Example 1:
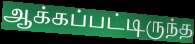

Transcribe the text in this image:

ஆக்கப்பட்டிருந்த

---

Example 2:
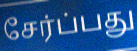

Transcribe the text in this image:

சேர்ப்பது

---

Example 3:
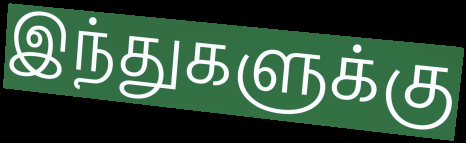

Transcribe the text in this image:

இந்துகளுக்கு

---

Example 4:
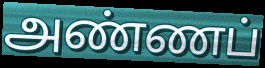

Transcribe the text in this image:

அண்ணப்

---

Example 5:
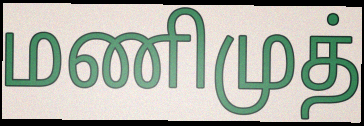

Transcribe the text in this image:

மணிமுத்